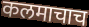
कलमाचाच